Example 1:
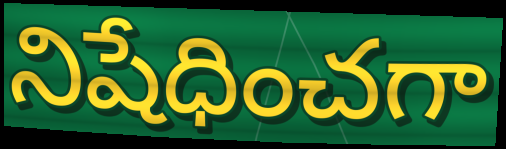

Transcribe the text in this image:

నిషేధించగా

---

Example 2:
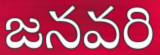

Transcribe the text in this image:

జనవరి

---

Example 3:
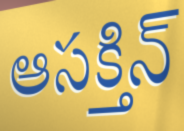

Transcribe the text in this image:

ఆసక్తిన్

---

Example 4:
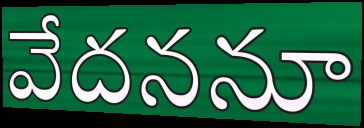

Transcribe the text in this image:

వేదననూ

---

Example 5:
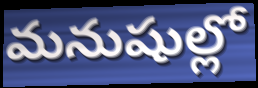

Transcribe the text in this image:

మనుషుల్లో